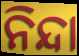
ନିନ୍ଦା